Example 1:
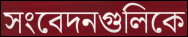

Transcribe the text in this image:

সংবেদনগুলিকে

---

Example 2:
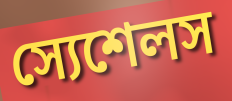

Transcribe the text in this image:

স্যেশেলস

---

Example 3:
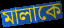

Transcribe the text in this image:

মালাকে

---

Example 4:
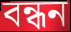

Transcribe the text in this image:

বন্ধন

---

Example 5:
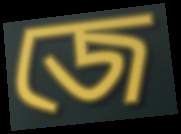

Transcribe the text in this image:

জে